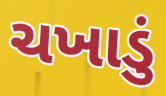
ચખાડું